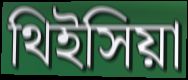
থিইসিয়া